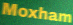
Moxham